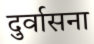
दुर्वासना